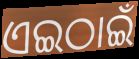
ଏଇଠାଇଁ